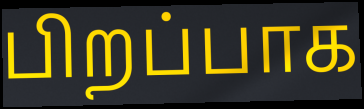
பிறப்பாக